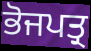
ਭੋਜਪਤ੍ਰ